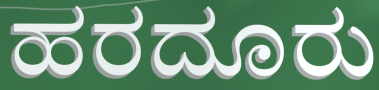
ಹರದೂರು